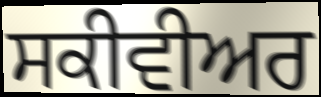
ਸਕੀਵੀਅਰ